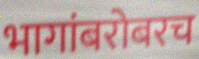
भागांबरोबरच